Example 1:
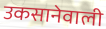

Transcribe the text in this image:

उकसानेवाली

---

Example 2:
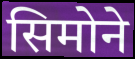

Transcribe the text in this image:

सिमोने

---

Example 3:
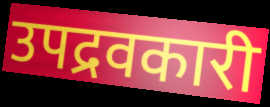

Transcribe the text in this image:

उपद्रवकारी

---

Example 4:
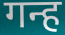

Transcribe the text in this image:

गन्ह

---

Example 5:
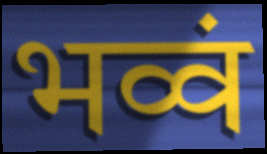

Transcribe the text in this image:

भव्वं